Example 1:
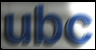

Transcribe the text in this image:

ubc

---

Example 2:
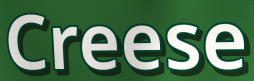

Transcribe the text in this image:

Creese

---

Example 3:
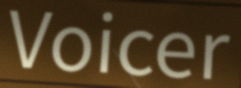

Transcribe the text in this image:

Voicer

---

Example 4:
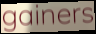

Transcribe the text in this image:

gainers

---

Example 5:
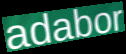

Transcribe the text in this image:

adabor